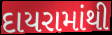
દાયરામાંથી